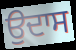
ਉਦਾਸ